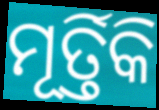
ମୂର୍ତ୍ତିକି